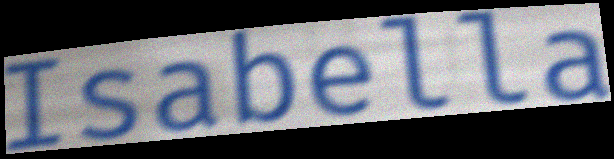
Isabella